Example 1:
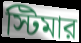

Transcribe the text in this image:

স্টিমার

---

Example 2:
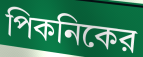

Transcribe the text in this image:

পিকনিকের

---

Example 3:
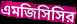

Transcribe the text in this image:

এমজিসিসির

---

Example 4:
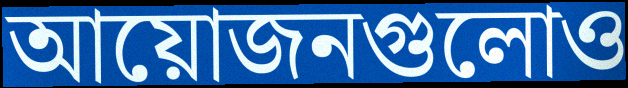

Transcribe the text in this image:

আয়োজনগুলোও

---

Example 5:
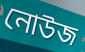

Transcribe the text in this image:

নোউজ